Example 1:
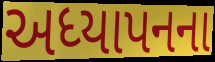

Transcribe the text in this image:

અધ્યાપનના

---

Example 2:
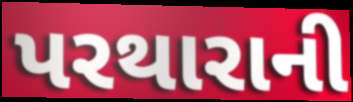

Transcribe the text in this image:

પરથારાની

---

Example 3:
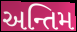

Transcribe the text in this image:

અન્તિમ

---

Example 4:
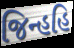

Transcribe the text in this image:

જિન્હહિ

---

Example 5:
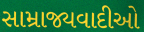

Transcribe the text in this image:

સામ્રાજ્યવાદીઓ